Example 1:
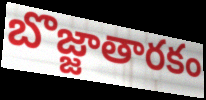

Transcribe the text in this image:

బొజ్జాతారకం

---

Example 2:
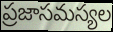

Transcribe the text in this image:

ప్రజాసమస్యల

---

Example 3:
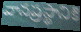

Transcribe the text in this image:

వానప్రస్థానికి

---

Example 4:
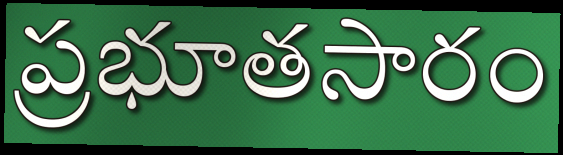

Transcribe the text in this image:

ప్రభూతసారం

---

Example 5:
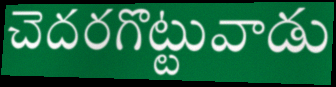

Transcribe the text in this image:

చెదరగొట్టువాడు